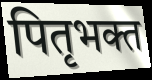
पितृभक्त